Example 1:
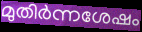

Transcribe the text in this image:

മുതിർന്നശേഷം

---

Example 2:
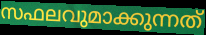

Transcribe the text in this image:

സഫലവുമാക്കുന്നത്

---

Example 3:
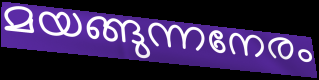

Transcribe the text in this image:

മയങ്ങുന്നനേരം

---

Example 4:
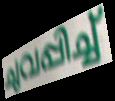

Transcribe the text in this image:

ചുവപ്പിച്ച്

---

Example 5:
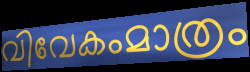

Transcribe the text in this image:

വിവേകംമാത്രം